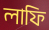
লাফি